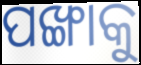
ପଙ୍ଖାକୁ